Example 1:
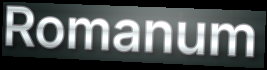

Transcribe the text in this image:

Romanum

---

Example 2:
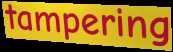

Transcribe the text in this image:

tampering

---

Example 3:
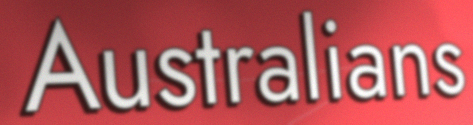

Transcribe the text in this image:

Australians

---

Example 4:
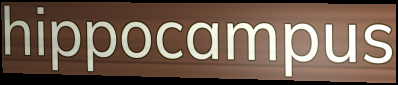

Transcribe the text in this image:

hippocampus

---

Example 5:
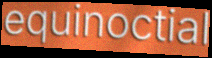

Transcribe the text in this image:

equinoctial